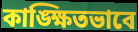
কাঙ্ক্ষিতভাবে